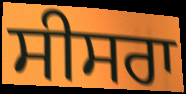
ਸੀਸਰਾ